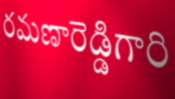
రమణారెడ్డిగారి